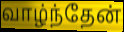
வாழ்ந்தேன்